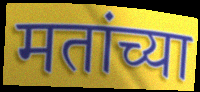
मतांच्या